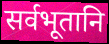
सर्वभूतानि